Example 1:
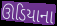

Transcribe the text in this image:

ઊડિયાના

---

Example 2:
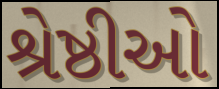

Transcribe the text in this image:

શ્રેષ્ઠીઓ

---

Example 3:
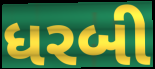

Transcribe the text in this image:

ધરબી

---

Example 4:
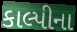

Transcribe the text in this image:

કાલ્પીના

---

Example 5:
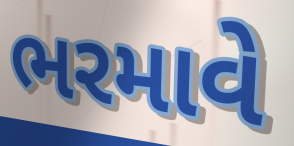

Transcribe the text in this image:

ભરમાવે